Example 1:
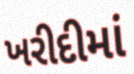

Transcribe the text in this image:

ખરીદીમાં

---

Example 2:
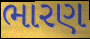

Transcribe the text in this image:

ભારણ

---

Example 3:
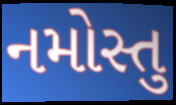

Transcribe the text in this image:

નમોસ્તુ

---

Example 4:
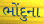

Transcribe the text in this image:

ભોંદુના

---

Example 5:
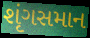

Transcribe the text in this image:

શૃંગસમાન